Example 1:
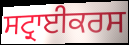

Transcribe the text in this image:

ਸਟ੍ਰਾਈਕਰਸ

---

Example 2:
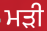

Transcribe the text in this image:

ਮੜੀ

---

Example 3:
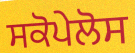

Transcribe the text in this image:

ਸਕੋਪੇਲੋਸ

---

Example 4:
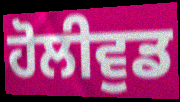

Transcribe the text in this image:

ਹੋਲੀਵੁਡ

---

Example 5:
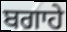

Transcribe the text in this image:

ਬਗਾਹੇ